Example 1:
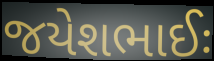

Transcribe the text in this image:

જયેશભાઈઃ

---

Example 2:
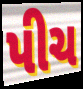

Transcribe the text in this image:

પીચ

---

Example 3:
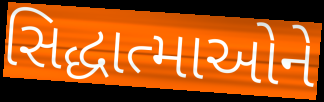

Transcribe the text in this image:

સિદ્ધાત્માઓને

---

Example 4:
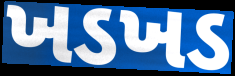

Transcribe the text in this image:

ખડખડ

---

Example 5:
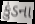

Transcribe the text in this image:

કુંડના